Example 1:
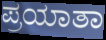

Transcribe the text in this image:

ಪ್ರಯಾತಾ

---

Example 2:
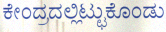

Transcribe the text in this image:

ಕೇಂದ್ರದಲ್ಲಿಟ್ಟುಕೊಂಡು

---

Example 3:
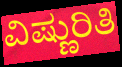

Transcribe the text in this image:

ವಿಷ್ಣುರಿತಿ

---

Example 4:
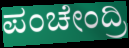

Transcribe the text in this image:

ಪಂಚೇಂದ್ರಿ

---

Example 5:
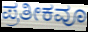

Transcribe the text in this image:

ಪ್ರತೀಕವೂ